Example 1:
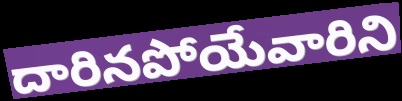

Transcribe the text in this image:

దారినపోయేవారిని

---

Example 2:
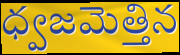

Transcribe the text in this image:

ధ్వజమెత్తిన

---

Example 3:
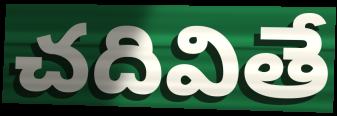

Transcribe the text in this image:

చదివితే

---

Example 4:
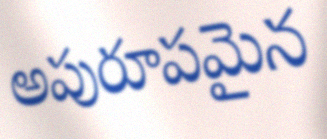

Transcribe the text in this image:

అపురూపమైన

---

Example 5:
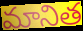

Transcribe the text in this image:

మానిత